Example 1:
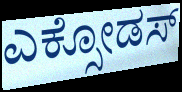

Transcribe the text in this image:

ಎಕ್ಸೋಡಸ್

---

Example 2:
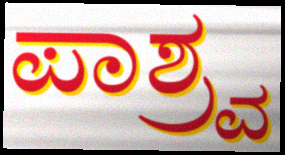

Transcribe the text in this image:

ಪಾಶ್ರ್ವ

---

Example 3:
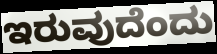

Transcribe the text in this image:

ಇರುವುದೆಂದು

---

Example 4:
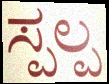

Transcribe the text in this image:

ಸ್ಪಲ್ಪ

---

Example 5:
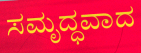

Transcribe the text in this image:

ಸಮೃದ್ಧವಾದ